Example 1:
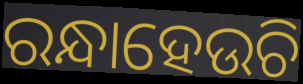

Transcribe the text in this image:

ରନ୍ଧାହେଉଚି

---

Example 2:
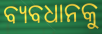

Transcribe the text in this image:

ବ୍ୟବଧାନକୁ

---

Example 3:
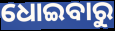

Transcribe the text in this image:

ଧୋଇବାରୁ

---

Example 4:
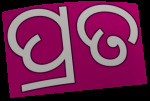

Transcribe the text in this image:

ପ୍ରତ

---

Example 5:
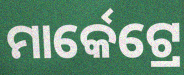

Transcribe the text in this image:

ମାର୍କେଟ୍ରେ